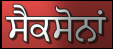
ਸੈਕਸੋਨਾਂ